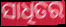
ସାଧିତର